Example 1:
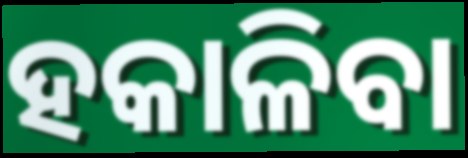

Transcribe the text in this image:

ହକାଳିବା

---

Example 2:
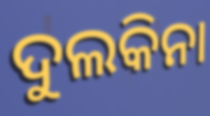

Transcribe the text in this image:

ଦୁଲକିନା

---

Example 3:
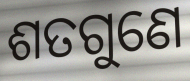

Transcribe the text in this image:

ଶତଗୁଣେ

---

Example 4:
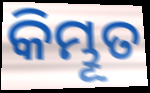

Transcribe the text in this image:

କିମ୍ଭୂତ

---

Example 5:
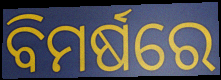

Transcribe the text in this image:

ବିମର୍ଷରେ